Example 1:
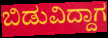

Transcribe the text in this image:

ಬಿಡುವಿದ್ದಾಗ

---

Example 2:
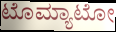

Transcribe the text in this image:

ಟೊಮ್ಯಾಟೋ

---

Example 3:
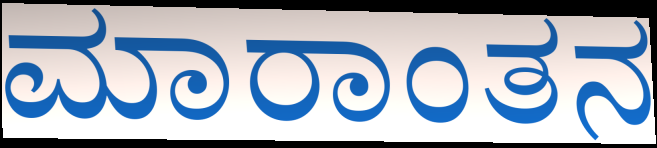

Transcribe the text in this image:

ಮಾರಾಂತನ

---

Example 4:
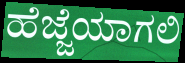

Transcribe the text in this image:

ಹೆಜ್ಜೆಯಾಗಲಿ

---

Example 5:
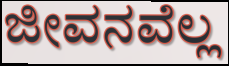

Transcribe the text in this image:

ಜೀವನವೆಲ್ಲ